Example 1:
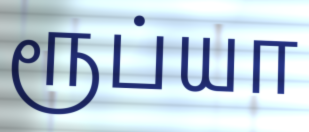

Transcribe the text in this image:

ரூப்யா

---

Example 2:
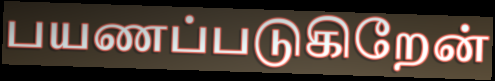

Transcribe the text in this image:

பயணப்படுகிறேன்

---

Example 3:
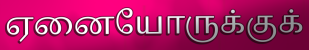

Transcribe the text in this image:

ஏனையோருக்குக்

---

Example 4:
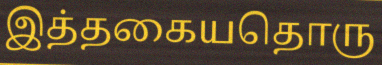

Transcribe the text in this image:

இத்தகையதொரு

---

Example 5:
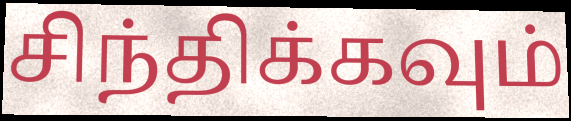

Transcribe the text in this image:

சிந்திக்கவும்